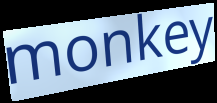
monkey